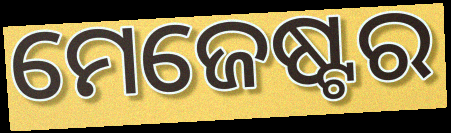
ମେଜେଷ୍ଟର